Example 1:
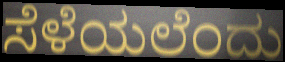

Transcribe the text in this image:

ಸೆಳೆಯಲೆಂದು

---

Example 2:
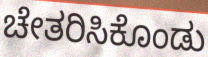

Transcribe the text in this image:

ಚೇತರಿಸಿಕೊಂಡು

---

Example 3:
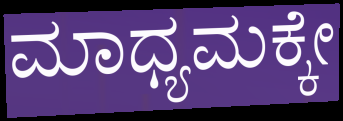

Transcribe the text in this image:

ಮಾಧ್ಯಮಕ್ಕೇ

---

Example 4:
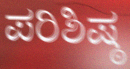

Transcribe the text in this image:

ಪರಿಶಿಷ್ಠ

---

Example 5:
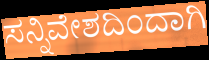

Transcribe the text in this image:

ಸನ್ನಿವೇಶದಿಂದಾಗಿ